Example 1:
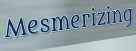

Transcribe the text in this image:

Mesmerizing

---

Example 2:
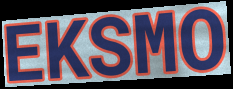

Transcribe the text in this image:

EKSMO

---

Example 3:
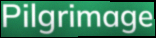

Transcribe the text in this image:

Pilgrimage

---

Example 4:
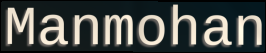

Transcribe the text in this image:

Manmohan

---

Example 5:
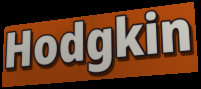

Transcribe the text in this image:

Hodgkin